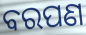
ବରପଣ